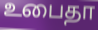
உபைதா